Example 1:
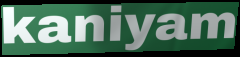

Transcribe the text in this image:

kaniyam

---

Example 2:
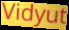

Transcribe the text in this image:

Vidyut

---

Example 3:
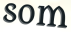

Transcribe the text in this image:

som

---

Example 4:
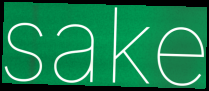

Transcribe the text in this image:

sake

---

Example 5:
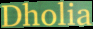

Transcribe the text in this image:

Dholia